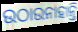
ଉଠାଉନାହାନ୍ତି